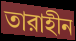
তারাহীন